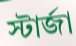
স্টার্জা